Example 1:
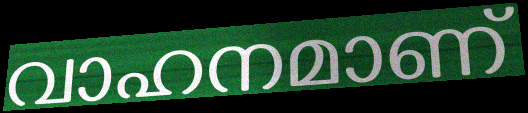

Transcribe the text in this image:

വാഹനമാണ്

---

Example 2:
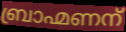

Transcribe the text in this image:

ബ്രാഹ്മണന്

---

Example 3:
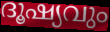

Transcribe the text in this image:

ദൂഷ്യവും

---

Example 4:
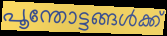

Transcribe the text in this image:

പൂന്തോട്ടങ്ങൾക്ക്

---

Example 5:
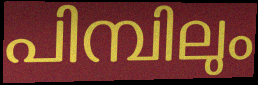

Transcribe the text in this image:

പിമ്പിലും